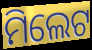
ମିଲେଟ